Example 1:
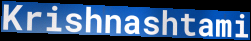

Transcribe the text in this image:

Krishnashtami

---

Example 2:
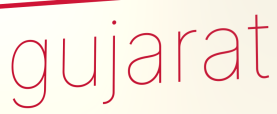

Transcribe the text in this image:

gujarat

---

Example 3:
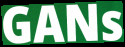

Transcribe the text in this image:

GANs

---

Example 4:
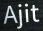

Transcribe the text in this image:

Ajit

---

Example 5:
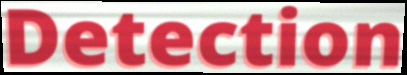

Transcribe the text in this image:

Detection